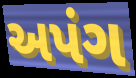
અપંગ